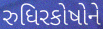
રુધિરકોષોને